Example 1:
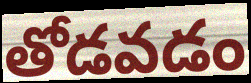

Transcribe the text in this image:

తోడవడం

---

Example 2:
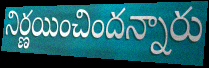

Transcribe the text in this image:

నిర్ణయించిందన్నారు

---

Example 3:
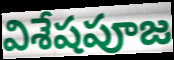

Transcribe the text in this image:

విశేషపూజ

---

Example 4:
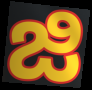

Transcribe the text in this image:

జి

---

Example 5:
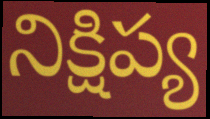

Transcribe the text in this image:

నిక్షిప్య